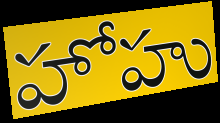
హోహు